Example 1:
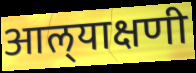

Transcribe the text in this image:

आल्याक्षणी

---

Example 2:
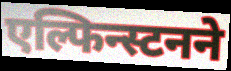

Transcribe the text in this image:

एल्फिन्स्टनने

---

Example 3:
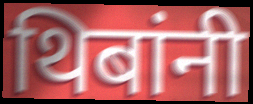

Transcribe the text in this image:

थिबांनी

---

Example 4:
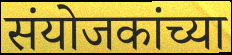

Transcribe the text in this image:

संयोजकांच्या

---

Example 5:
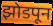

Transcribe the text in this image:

झोडपून